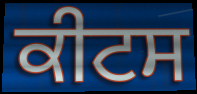
ਕੀਟਸ